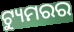
ଟ୍ୟୁମରର